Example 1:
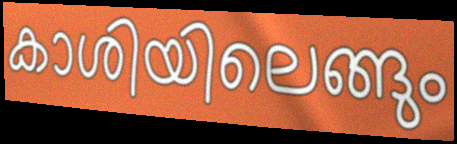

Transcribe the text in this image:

കാശിയിലെങ്ങും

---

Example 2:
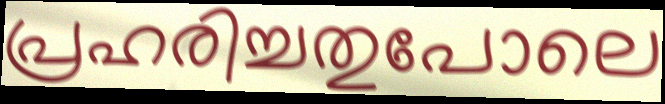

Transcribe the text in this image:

പ്രഹരിച്ചതുപോലെ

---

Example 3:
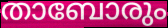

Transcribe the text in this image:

താബോരും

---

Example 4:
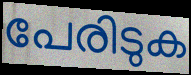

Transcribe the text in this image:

പേരിടുക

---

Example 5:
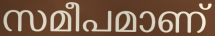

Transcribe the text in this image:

സമീപമാണ്